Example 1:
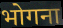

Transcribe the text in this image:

भोगना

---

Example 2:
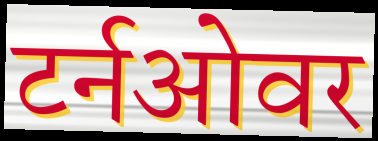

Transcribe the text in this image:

टर्नओवर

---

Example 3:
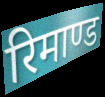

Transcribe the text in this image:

रिमाण्ड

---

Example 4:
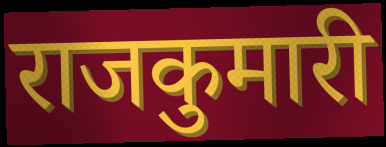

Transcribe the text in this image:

राजकुमारी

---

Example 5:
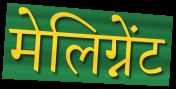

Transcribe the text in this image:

मेलिग्नेंट